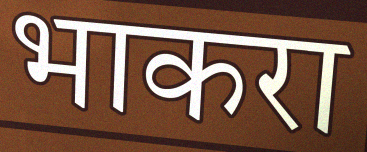
भाकरा